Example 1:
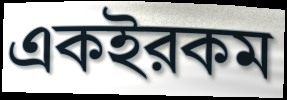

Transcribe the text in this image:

একইরকম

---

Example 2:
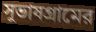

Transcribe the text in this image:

সুভাষগ্রামের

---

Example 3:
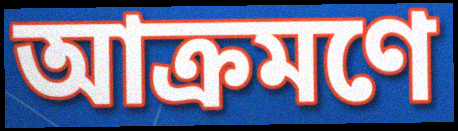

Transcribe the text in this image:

আক্রমণে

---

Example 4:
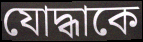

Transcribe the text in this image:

যোদ্ধাকে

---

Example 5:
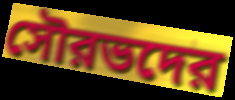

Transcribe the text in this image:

সৌরভদের